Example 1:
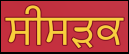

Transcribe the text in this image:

ਸੀਸੜਕ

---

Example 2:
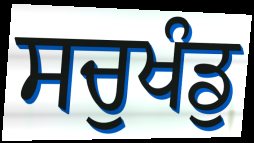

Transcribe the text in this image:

ਸਚੁਖੰਡੁ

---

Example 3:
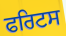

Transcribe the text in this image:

ਫਰਿਟਸ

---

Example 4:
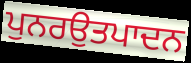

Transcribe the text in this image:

ਪੁਨਰਉਤਪਾਦਨ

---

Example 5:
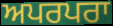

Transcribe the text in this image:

ਅਪਰਪਰਾ